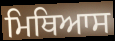
ਮਿਥਿਆਸ